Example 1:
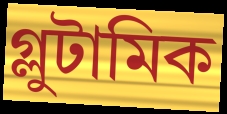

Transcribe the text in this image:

গ্লুটামিক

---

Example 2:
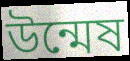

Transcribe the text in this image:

উন্মেষ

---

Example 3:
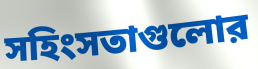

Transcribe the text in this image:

সহিংসতাগুলোর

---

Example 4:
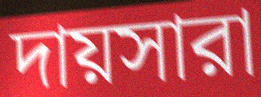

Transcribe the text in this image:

দায়সারা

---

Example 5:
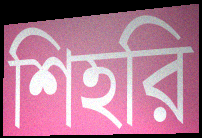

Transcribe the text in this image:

শিহরি